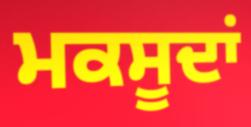
ਮਕਸੂਦਾਂ